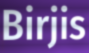
Birjis